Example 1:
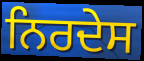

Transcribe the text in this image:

ਨਿਰਦੇਸ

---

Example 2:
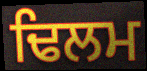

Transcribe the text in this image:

ਢਿਲਮ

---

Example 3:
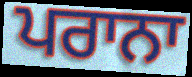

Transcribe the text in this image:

ਪਰਾਨਾ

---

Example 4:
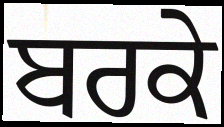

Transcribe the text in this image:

ਬਰਕੇ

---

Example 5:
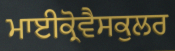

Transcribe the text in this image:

ਮਾਈਕ੍ਰੋਵੈਸਕੁਲਰ